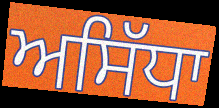
ਅਸਿੱਧਾ